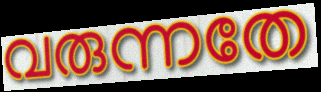
വരുന്നതേ